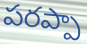
పరప్పా